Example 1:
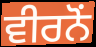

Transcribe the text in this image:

ਵੀਰਨੋਂ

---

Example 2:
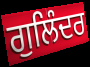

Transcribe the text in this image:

ਗੁਲਿੰਦਰ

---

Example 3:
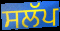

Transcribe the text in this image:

ਸਲੱਪ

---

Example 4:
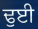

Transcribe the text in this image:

ਢੁਈ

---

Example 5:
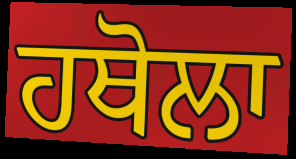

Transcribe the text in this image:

ਹਥੋਲਾ